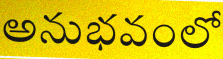
అనుభవంలో